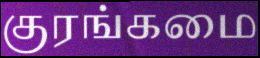
குரங்கமை